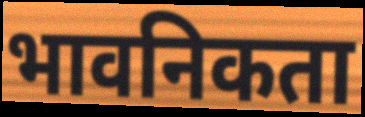
भावनिकता